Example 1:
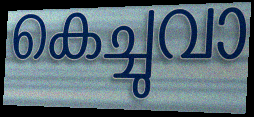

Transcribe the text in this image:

കെച്ചുവാ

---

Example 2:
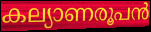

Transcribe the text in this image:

കല്യാണരൂപൻ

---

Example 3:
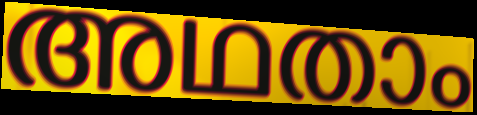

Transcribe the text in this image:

അഥതാം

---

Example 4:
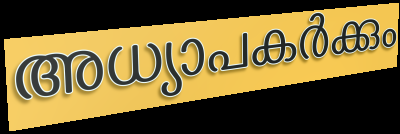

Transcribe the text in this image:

അധ്യാപകർക്കും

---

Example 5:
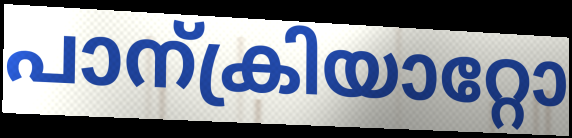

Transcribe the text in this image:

പാന്ക്രിയാറ്റോ